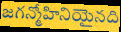
జగన్మోహినియైనది